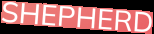
SHEPHERD